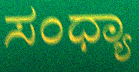
ಸಂಧ್ಯಾ